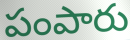
పంపారు